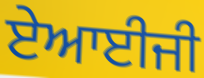
ਏਆਈਜੀ